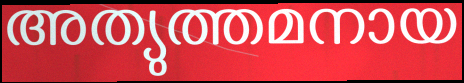
അത്യുത്തമനായ